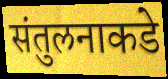
संतुलनाकडे